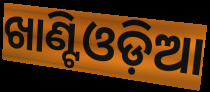
ଖାଣ୍ଟିଓଡ଼ିଆ